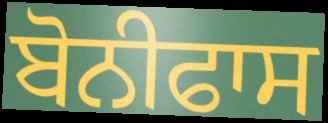
ਬੋਨੀਫਾਸ